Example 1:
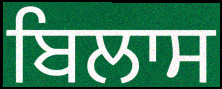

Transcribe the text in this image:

ਬਿਲਾਸ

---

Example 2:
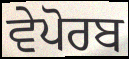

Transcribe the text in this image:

ਵੇਪੋਰਬ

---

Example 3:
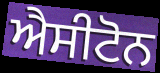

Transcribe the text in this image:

ਐਸੀਟੋਨ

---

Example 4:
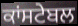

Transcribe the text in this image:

ਕਾਂਸਟੇਬਲ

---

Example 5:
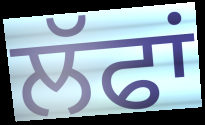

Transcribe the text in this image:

ਲੱਫਾਂ